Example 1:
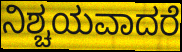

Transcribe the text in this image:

ನಿಶ್ಚಯವಾದರೆ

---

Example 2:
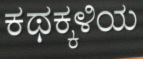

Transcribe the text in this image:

ಕಥಕ್ಕಳಿಯ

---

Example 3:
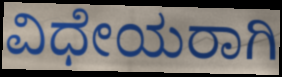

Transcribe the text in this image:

ವಿಧೇಯರಾಗಿ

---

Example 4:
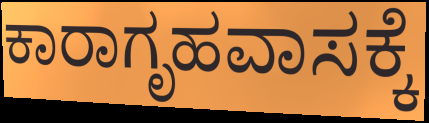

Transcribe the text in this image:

ಕಾರಾಗೃಹವಾಸಕ್ಕೆ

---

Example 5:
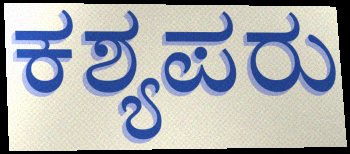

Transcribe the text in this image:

ಕಶ್ಯಪರು